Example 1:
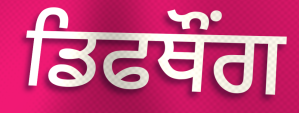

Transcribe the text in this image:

ਡਿਫਥੌਂਗ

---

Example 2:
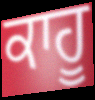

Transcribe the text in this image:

ਕਾਹੂ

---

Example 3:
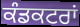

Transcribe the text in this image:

ਕੰਡਕਟਰਾਂ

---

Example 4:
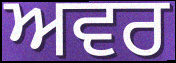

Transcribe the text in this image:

ਅਵਰ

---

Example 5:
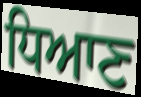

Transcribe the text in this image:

ਧਿਆਣ